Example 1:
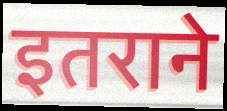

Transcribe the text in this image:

इतराने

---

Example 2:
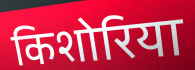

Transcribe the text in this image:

किशोरिया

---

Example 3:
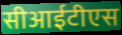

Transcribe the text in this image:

सीआईटीएस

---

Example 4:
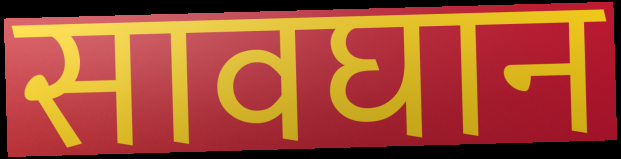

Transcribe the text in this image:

सावघान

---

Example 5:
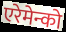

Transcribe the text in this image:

एरेमेन्को